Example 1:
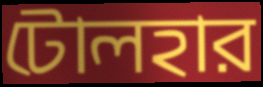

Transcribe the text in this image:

টোলহার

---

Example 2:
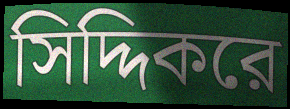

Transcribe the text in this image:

সিদ্দিকরে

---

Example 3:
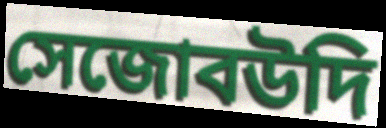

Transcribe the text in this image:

সেজোবউদি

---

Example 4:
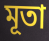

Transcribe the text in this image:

মূতা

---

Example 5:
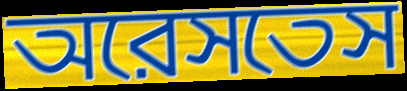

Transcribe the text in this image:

অরেসতেস